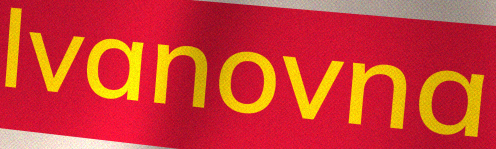
Ivanovna